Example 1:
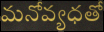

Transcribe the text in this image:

మనోవ్యధతో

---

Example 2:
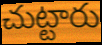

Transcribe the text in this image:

చుట్టారు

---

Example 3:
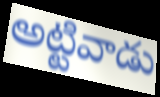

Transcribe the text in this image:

అట్టివాడు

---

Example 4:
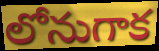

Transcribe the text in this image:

లోనుగాక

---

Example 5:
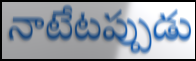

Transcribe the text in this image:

నాటేటప్పుడు